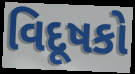
વિદૂષકો